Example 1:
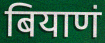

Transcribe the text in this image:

बियाणं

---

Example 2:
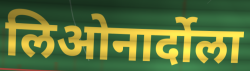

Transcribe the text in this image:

लिओनार्दोला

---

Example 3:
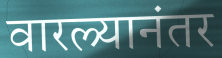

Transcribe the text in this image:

वारल्यानंतर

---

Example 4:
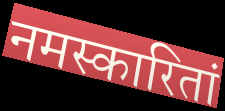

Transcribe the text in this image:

नमस्कारितां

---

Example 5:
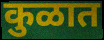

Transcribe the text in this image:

कुळात